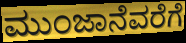
ಮುಂಜಾನೆವರೆಗೆ